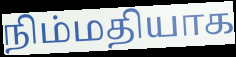
நிம்மதியாக